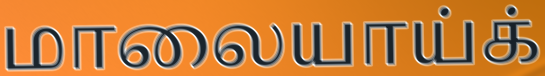
மாலையாய்க்